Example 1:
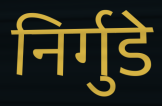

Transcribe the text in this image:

निर्गुडे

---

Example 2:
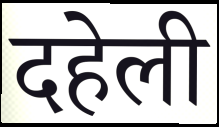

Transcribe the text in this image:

दहेली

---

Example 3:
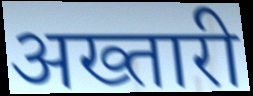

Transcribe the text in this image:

अख्तारी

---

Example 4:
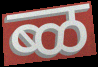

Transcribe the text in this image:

ब्ळ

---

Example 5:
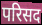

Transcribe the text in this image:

परिसद